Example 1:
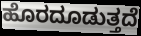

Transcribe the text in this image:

ಹೊರದೂಡುತ್ತದೆ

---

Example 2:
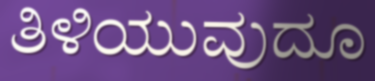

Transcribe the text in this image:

ತಿಳಿಯುವುದೂ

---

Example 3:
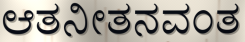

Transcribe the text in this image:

ಆತನೀತನವಂತ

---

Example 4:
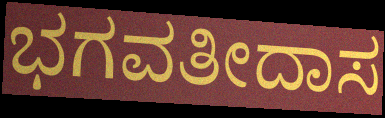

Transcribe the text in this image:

ಭಗವತೀದಾಸ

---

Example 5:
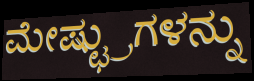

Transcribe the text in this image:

ಮೇಷ್ಟ್ರುಗಳನ್ನು